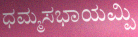
ಧಮ್ಮಸಭಾಯಮ್ಪಿ